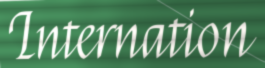
Internation